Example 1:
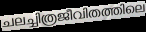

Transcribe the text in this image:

ചലച്ചിത്രജീവിതത്തിലെ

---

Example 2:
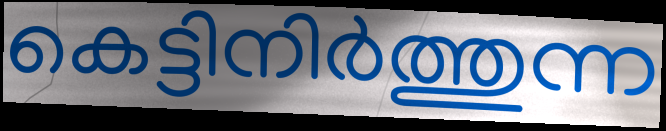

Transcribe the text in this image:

കെട്ടിനിർത്തുന്ന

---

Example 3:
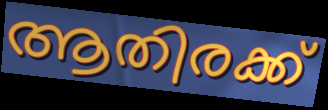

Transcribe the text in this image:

ആതിരക്ക്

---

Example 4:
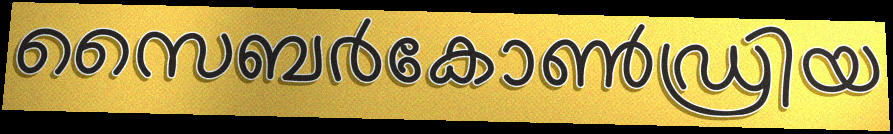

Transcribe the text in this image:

സൈബർകോൺഡ്രിയ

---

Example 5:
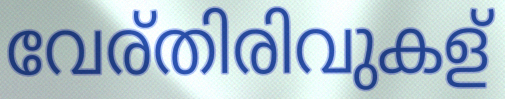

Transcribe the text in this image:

വേര്തിരിവുകള്